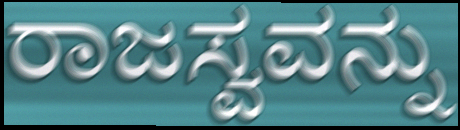
ರಾಜಸ್ವವನ್ನು